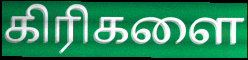
கிரிகளை